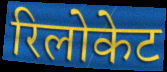
रिलोकेट